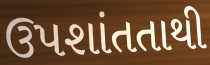
ઉપશાંતતાથી